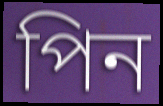
পিন